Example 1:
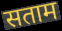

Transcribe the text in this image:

सताम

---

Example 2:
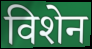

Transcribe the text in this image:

विशेन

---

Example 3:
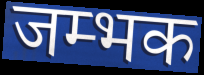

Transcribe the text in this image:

जम्भक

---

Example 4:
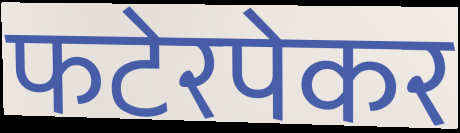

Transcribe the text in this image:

फटेरपेकर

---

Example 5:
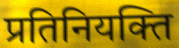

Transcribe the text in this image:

प्रतिनियक्ति